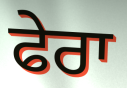
ਫੇਰਾ